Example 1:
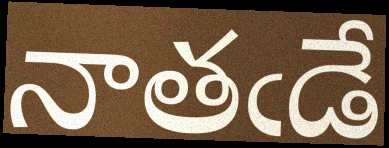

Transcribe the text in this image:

నాతఁడే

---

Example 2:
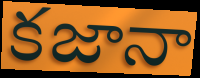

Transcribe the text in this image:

కజానా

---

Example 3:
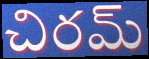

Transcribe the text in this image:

చిరమ్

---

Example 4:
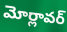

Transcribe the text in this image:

మోర్లావర్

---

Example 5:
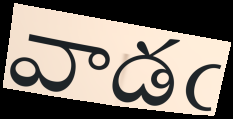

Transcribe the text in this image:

వాడఁ